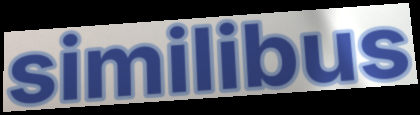
similibus